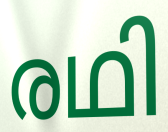
രഥി